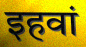
इहवां